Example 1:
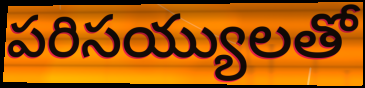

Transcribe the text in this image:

పరిసయ్యులతో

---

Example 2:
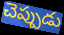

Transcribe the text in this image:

చెప్పుడు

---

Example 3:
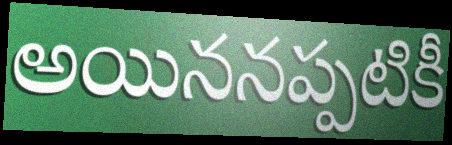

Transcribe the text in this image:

అయిననప్పటికీ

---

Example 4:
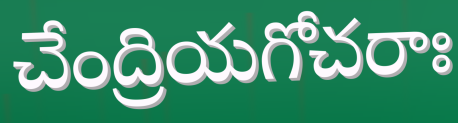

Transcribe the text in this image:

చేంద్రియగోచరాః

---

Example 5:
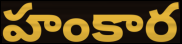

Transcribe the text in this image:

హంకార